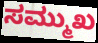
ಸಮ್ಮುಖ